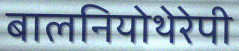
बालनियोथेरेपी